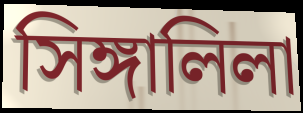
সিঙ্গালিলা